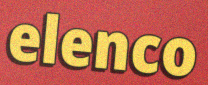
elenco